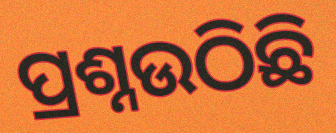
ପ୍ରଶ୍ନଉଠିଛି